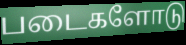
படைகளோடு